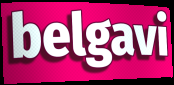
belgavi